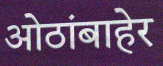
ओठांबाहेर